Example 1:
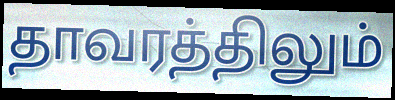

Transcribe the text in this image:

தாவரத்திலும்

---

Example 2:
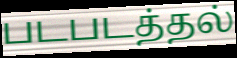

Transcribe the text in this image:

படபடத்தல்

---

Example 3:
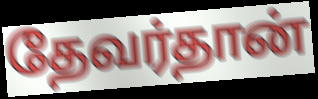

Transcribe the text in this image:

தேவர்தான்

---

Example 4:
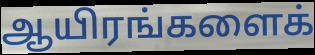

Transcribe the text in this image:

ஆயிரங்களைக்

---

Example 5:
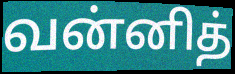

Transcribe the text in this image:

வன்னித்